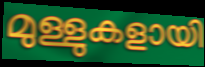
മുള്ളുകളായി